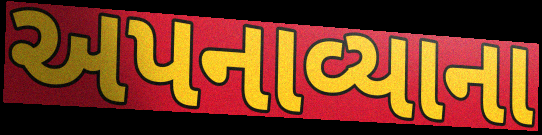
અપનાવ્યાના